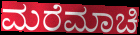
ಮರೆಮಾಚಿ